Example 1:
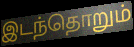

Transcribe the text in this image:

இடந்தொறும்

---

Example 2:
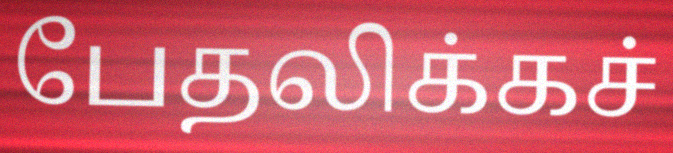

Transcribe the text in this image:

பேதலிக்கச்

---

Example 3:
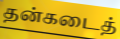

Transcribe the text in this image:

தன்கடைத்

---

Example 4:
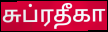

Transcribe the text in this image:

சுப்ரதீகா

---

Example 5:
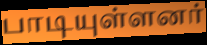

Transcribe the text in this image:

பாடியுள்ளனர்